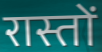
रास्तों